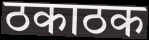
ठकाठक